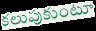
కలుపుకుంటూ